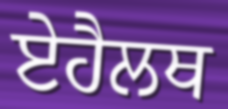
ਏਹੈਲਥ